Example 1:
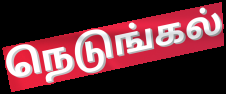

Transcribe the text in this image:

நெடுங்கல்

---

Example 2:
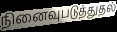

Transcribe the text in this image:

நினைவுபடுத்துதல்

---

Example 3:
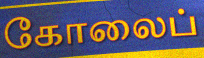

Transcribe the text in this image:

கோலைப்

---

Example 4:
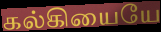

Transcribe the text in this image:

கல்கியையே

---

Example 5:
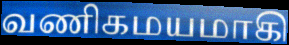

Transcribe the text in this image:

வணிகமயமாகி